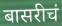
बासरीचं